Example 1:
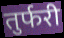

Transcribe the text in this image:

तुर्फरी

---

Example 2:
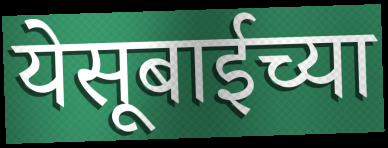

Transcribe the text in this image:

येसूबाईच्या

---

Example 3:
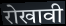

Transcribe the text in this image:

रोखावी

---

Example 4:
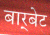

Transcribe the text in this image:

बार्बेट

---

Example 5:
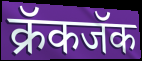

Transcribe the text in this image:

क्रॅकजॅक